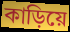
কাড়িয়ে